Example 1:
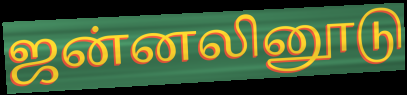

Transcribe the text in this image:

ஜன்னலினூடு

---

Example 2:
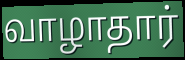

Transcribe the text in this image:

வாழாதார்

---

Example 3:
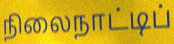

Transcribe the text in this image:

நிலைநாட்டிப்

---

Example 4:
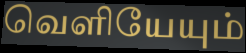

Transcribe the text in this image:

வெளியேயும்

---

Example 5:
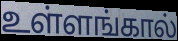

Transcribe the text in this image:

உள்ளங்கால்